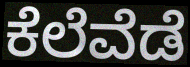
ಕೆಲೆವೆಡೆ